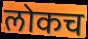
लोकच